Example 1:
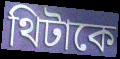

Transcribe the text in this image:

থিটাকে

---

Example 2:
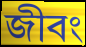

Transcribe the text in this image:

জীবং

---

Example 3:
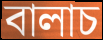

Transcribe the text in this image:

বালাচ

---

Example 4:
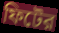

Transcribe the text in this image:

ফিটের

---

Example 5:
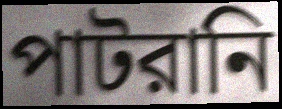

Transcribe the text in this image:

পাটরানি